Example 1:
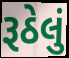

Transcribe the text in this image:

રૂઠેલું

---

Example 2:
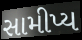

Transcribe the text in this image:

સામીપ્ય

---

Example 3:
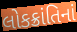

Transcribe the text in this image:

લોકક્રાંતિનાં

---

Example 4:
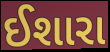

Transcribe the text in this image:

ઈશારા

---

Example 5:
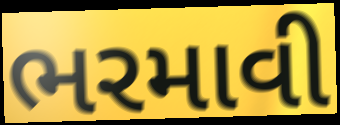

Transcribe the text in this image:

ભરમાવી